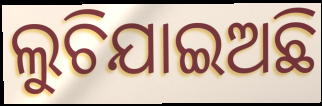
ଲୁଚିଯାଇଅଛି